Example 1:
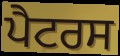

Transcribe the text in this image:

ਪੈਟਰਸ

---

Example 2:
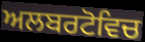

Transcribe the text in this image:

ਅਲਬਰਟੋਵਿਚ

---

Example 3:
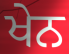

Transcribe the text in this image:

ਖੇਨ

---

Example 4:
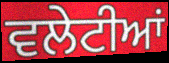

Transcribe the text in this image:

ਵਲੇਟੀਆਂ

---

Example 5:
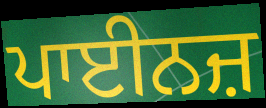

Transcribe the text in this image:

ਪਾਈਨਜ਼